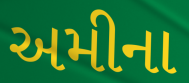
અમીના